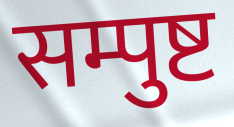
सम्पुष्ट